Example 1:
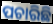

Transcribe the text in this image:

ପଚାରିଛି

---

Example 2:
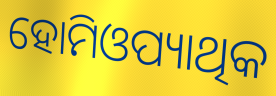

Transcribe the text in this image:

ହୋମିଓପ୍ୟାଥିକ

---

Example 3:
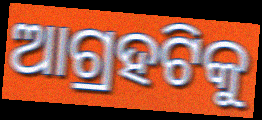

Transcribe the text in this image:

ଆଗ୍ରହଟିକୁ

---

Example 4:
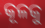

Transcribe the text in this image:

କୂଳକୁ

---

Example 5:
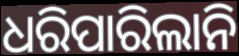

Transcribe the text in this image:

ଧରିପାରିଲାନି